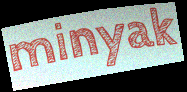
minyak